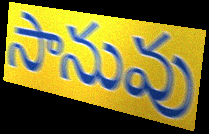
సానువు